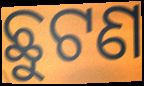
ଛୁଟଣ